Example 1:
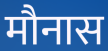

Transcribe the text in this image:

मौनास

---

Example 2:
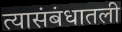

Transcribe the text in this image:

त्यासंबंधातली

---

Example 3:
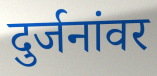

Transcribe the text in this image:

दुर्जनांवर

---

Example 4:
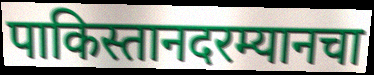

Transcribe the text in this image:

पाकिस्तानदरम्यानचा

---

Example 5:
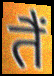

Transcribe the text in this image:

तैं